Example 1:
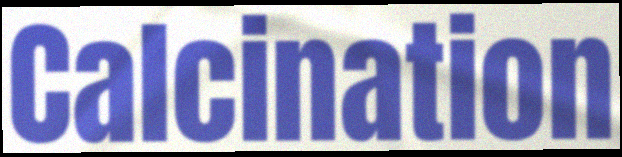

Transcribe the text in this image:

Calcination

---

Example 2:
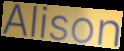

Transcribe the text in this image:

Alison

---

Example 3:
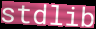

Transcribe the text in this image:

stdlib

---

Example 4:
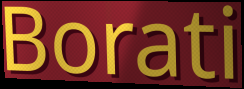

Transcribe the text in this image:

Borati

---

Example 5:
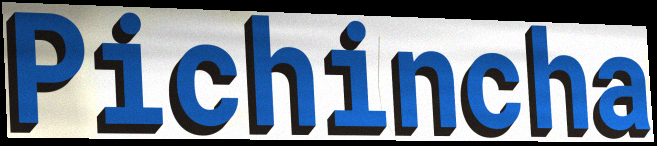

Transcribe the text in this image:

Pichincha